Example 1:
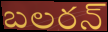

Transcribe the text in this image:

బలరన్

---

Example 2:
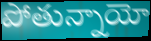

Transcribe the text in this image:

పోతున్నాయో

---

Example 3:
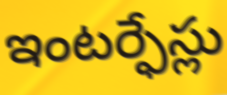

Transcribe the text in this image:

ఇంటర్ఫేస్లు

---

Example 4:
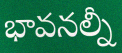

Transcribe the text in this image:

భావనల్నీ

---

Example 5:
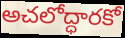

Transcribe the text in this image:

అచలోద్ధారకో